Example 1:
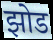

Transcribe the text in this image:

झोड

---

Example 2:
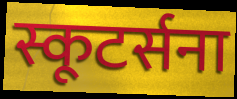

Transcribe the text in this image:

स्कूटर्सना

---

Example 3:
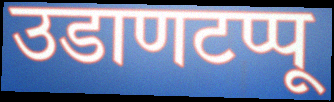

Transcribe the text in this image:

उडाणटप्पू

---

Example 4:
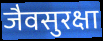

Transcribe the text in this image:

जैवसुरक्षा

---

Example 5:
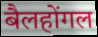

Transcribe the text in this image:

बैलहोंगल